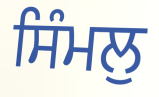
ਸਿੰਮਲੁ